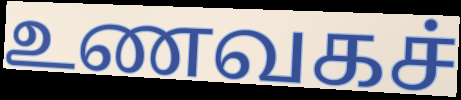
உணவகச்